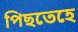
পিছতেহে